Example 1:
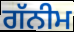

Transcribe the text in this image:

ਗੱਨੀਮ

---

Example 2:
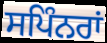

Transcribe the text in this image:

ਸਪਿੰਨਰਾਂ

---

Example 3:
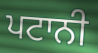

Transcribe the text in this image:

ਪਟਾਨੀ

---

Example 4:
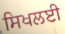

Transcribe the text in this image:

ਸਿਖਲਈ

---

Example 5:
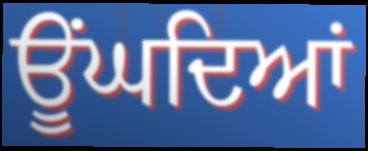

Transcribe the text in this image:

ਊਂਘਦਿਆਂ